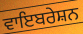
ਵਾਇਬਰੇਸ਼ਨ